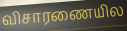
விசாரணையில